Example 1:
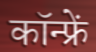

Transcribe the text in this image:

कॉन्फ्रें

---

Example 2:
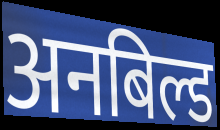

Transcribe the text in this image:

अनबिल्ड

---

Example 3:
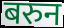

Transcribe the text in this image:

बरुन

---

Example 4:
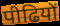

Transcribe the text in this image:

पीढियों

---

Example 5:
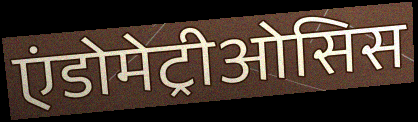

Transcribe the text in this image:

एंडोमेट्रीओसिस